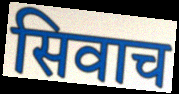
सिवाच